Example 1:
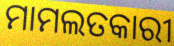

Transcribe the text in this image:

ମାମଲତକାରୀ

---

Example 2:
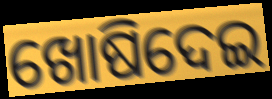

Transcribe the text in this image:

ଖୋଷିଦେଇ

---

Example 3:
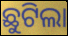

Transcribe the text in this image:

ଛୁଟିଲା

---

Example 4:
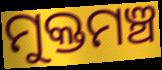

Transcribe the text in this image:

ମୁକ୍ତମଞ୍ଚ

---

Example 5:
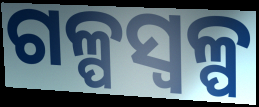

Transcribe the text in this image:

ଗଳ୍ପସ୍ୱଳ୍ପ